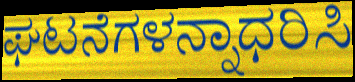
ಘಟನೆಗಳನ್ನಾಧರಿಸಿ